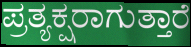
ಪ್ರತ್ಯಕ್ಷರಾಗುತ್ತಾರೆ